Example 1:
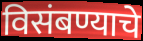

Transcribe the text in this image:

विसंबण्याचे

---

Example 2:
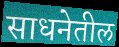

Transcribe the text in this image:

साधनेतील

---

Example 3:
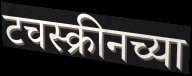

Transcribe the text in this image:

टचस्क्रीनच्या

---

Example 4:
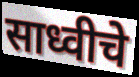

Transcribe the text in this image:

साध्वीचे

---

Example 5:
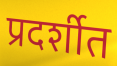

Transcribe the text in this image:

प्रदर्शीत